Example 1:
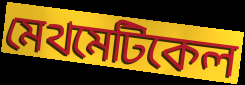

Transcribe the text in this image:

মেথমেটিকেল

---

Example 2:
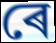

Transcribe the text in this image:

ৰে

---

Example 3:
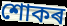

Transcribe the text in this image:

শোকৰ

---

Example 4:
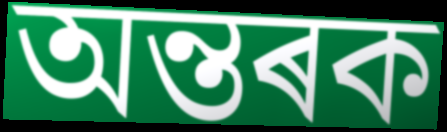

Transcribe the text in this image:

অন্তৰক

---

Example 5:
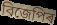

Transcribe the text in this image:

বিজেপিৰ